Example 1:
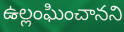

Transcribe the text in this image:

ఉల్లంఘించానని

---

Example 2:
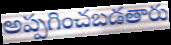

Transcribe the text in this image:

అప్పగించబడతారు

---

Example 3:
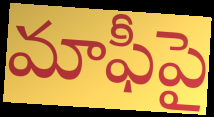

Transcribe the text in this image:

మాఫీపై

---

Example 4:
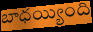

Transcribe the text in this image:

బాధయ్యింది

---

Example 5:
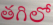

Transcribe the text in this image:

తగిలో